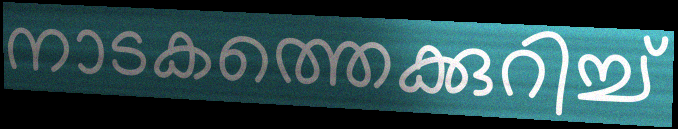
നാടകത്തെക്കുറിച്ച്